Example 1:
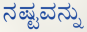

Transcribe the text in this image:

ನಷ್ಟವನ್ನು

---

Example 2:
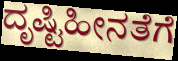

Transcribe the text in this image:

ದೃಷ್ಟಿಹೀನತೆಗೆ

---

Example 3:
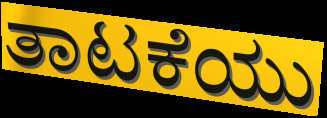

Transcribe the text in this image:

ತಾಟಕೆಯು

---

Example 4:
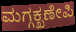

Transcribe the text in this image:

ಮಗ್ಗಕ್ಖಣೇಪಿ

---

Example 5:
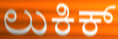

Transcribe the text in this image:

ಲುಕಿಕ್